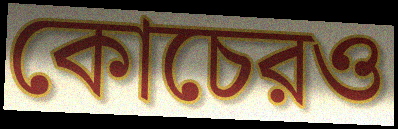
কোচেরও